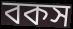
বকস